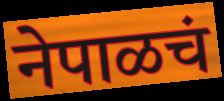
नेपाळचं